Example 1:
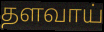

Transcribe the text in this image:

தளவாய்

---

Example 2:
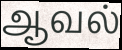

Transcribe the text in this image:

ஆவல்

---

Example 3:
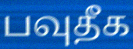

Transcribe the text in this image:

பவுதீக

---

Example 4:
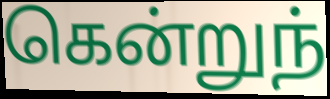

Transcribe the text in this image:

கென்றுந்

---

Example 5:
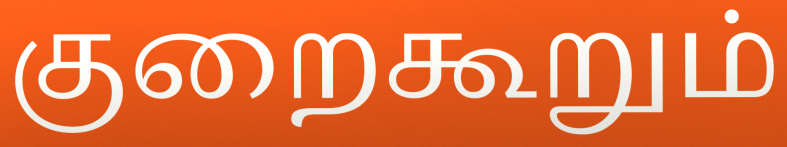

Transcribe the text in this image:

குறைகூறும்